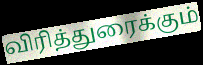
விரித்துரைக்கும்